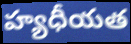
హ్యధీయత